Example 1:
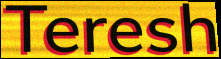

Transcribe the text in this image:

Teresh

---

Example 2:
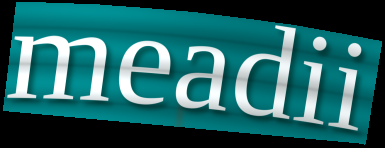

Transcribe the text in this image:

meadii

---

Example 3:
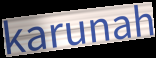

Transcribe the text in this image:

karunah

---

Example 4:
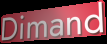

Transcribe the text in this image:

Dimand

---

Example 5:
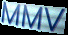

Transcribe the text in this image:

MMV